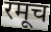
रमूच